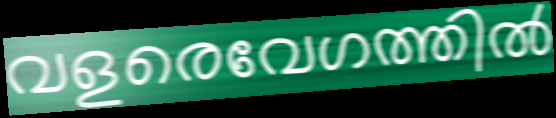
വളരെവേഗത്തിൽ